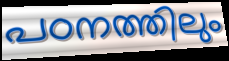
പഠനത്തിലും